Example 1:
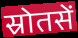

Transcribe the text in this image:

स्रोतसें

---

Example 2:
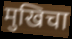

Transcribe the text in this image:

मुखिचा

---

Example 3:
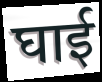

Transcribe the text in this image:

घाई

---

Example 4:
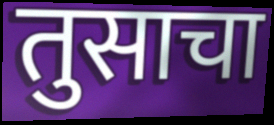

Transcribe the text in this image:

तुसाचा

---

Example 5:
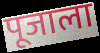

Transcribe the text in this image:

पूजाला